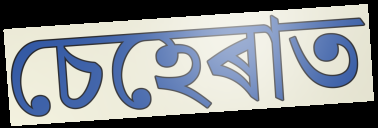
চেহেৰাত